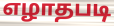
எழாதபடி